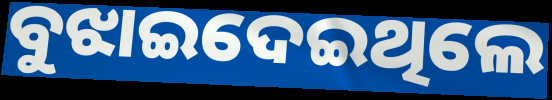
ବୁଝାଇଦେଇଥିଲେ